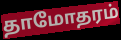
தாமோதரம்